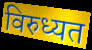
विरुध्यत